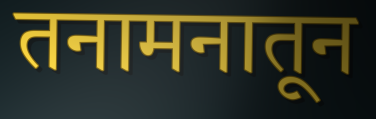
तनामनातून